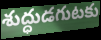
శుద్ధుడగుటకు